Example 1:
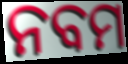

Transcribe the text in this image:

ନବମ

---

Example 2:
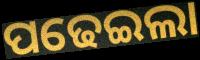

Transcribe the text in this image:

ପଢେଇଲା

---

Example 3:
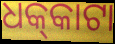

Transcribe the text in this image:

ଧକ୍‌କାଟା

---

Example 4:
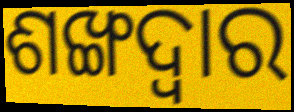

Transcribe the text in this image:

ଶଙ୍ଖଦ୍ୱାର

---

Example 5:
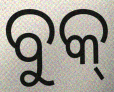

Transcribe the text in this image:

ବୁକ୍